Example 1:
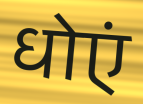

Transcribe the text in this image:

धोएं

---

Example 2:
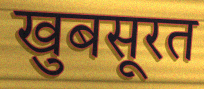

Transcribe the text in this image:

खुबसूरत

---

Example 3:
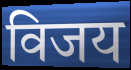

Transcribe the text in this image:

विजय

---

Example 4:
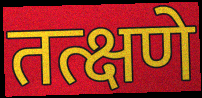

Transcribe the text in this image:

तत्क्षणे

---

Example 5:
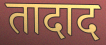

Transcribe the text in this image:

तादाद